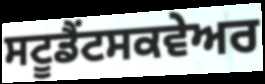
ਸਟੂਡੈਂਟਸਕਵੇਅਰ